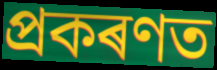
প্ৰকৰণত